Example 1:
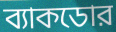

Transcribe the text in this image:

ব্যাকডোর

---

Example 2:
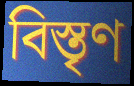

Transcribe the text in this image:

বিস্তৃণ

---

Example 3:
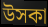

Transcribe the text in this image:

উসকা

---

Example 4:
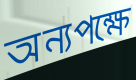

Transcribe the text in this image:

অন্যপক্ষে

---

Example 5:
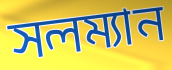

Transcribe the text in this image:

সলম্যান